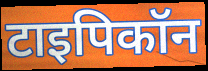
टाइपिकॉन